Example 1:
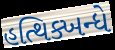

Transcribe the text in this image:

હત્થિક્ખન્ધે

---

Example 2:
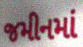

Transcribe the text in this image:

જમીનમાં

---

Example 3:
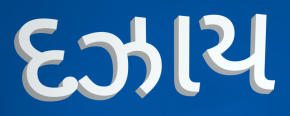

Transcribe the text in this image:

દઝાય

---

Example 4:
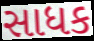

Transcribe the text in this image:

સાધક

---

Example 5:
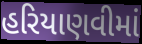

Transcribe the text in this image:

હરિયાણવીમાં